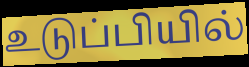
உடுப்பியில்